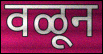
वळून